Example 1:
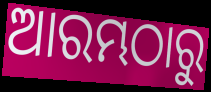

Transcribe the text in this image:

ଆରମ୍ଭଠାରୁ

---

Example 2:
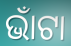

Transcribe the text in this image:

ଭାଁଟା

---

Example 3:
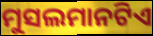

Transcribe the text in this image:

ମୁସଲମାନଟିଏ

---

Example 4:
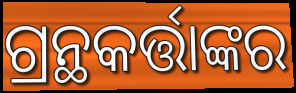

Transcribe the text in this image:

ଗ୍ରନ୍ଥକର୍ତ୍ତାଙ୍କର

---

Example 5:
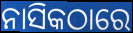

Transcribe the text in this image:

ନାସିକଠାରେ